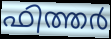
ഫിത്തർ